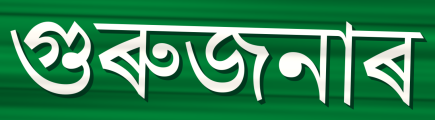
গুৰুজনাৰ